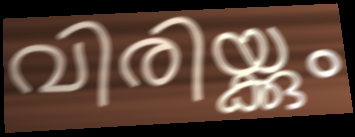
വിരിയ്ക്കും